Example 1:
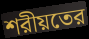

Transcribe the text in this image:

শরীয়তের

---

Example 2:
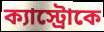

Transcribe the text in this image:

ক্যাস্ট্রোকে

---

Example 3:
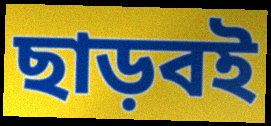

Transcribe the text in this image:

ছাড়বই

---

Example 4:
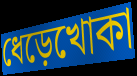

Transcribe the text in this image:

ধেড়েখোকা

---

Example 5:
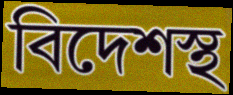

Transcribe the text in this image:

বিদেশস্থ